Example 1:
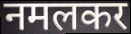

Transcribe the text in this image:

नमलकर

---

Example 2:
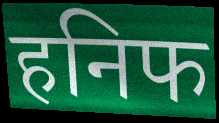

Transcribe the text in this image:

हनिफ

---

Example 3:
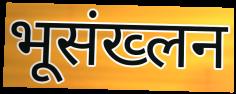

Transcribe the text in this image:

भूसंख्लन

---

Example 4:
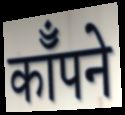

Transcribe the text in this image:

कॉँपने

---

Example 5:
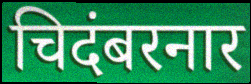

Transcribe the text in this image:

चिदंबरनार